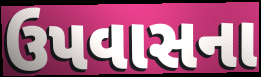
ઉપવાસના